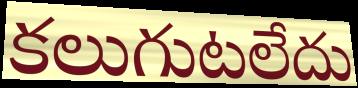
కలుగుటలేదు